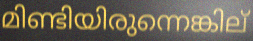
മിണ്ടിയിരുന്നെങ്കില്